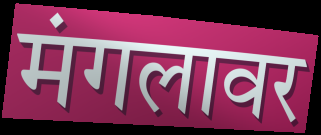
मंगलावर